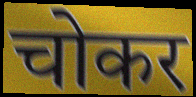
चोकर